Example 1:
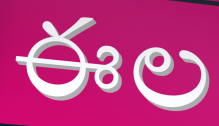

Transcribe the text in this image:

ఈల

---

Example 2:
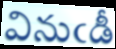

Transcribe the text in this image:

వినుఁడీ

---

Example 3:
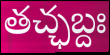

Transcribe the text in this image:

తచ్ఛబ్దః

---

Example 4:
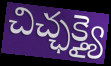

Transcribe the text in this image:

చిచ్ఛక్త్యై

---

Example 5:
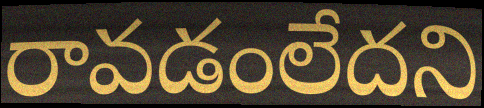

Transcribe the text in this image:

రావడంలేదని